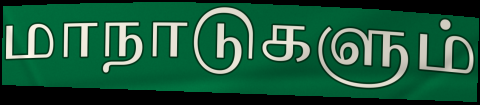
மாநாடுகளும்